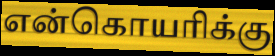
என்கொயரிக்கு